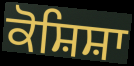
ਕੋਸ਼ਿਸ਼ਾ